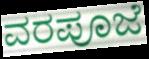
ವರಪೂಜೆ